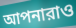
আপনারাও